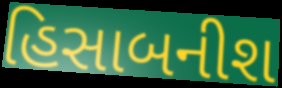
હિસાબનીશ